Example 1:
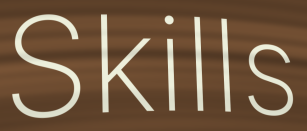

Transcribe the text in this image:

Skills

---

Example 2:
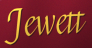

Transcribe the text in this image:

Jewett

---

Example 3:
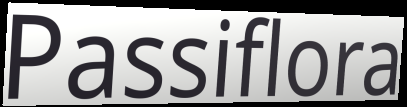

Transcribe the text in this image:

Passiflora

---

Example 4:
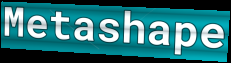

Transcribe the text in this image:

Metashape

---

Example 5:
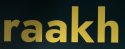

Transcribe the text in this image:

raakh